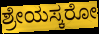
ಶ್ರೇಯಸ್ಕರೋ